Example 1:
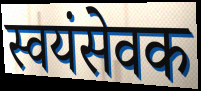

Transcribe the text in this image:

स्वयंसेवक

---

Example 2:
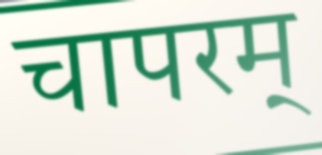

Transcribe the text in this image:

चापरम्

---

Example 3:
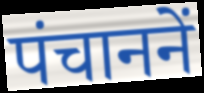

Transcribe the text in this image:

पंचाननें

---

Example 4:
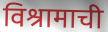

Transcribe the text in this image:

विश्रामाची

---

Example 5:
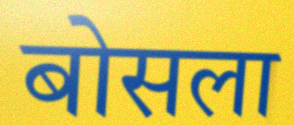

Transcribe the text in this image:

बोसला